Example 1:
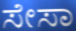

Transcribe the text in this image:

ಸೇಸಾ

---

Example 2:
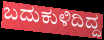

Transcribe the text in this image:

ಬದುಕುಳಿದಿದ್ದ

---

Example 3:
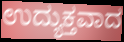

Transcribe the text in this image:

ಉದ್ಯುಕ್ತವಾದ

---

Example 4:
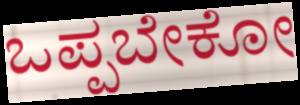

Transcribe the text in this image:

ಒಪ್ಪಬೇಕೋ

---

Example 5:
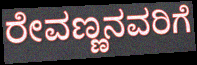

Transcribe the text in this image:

ರೇವಣ್ಣನವರಿಗೆ